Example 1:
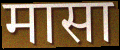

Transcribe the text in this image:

मासा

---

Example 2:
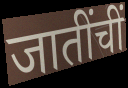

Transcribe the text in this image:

जातींचीं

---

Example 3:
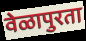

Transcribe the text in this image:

वेळापुरता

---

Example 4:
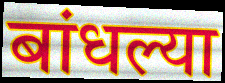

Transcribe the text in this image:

बांधल्या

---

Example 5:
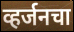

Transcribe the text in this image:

व्हर्जनचा